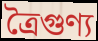
ত্রৈগুণ্য